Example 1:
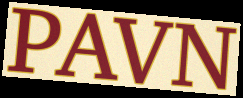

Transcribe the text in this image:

PAVN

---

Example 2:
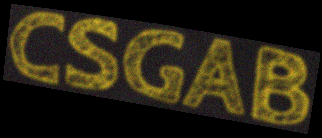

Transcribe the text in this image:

CSGAB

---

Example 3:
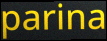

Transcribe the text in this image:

parina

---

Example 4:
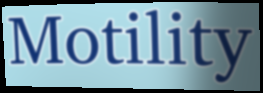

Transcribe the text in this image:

Motility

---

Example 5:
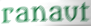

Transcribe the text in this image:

ranaut